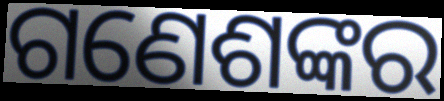
ଗଣେଶଙ୍କର